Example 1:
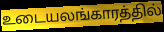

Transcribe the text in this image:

உடையலங்காரத்தில்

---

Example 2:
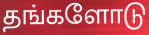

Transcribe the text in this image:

தங்களோடு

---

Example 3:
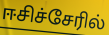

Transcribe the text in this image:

ஈசிச்சேரில்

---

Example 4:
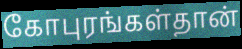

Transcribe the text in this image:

கோபுரங்கள்தான்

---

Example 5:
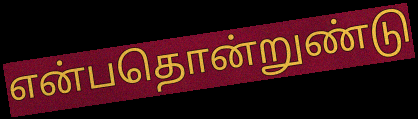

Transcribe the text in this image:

என்பதொன்றுண்டு